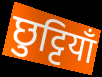
छुट्टियाँ